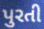
પુરતી